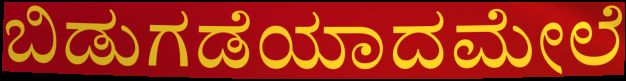
ಬಿಡುಗಡೆಯಾದಮೇಲೆ